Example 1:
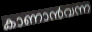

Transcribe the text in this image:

കാണാൻവന്ന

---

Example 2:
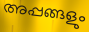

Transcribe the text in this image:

അപ്പങ്ങളും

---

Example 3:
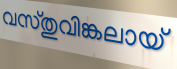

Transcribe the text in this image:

വസ്തുവിങ്കലായ്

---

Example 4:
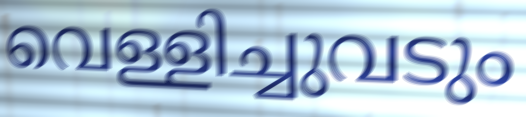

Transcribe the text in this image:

വെള്ളിച്ചുവടും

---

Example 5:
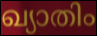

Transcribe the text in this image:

ഖ്യാതിം